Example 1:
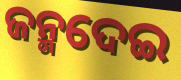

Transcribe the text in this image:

ଜନ୍ମଦେଇ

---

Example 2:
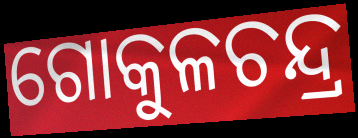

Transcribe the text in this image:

ଗୋକୁଳଚନ୍ଦ୍ର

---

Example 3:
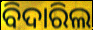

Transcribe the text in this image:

ବିଦାରିଲ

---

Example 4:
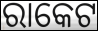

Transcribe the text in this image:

ରାକେଟ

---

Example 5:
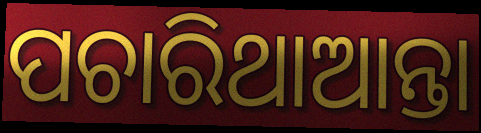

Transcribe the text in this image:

ପଚାରିଥାଆନ୍ତା